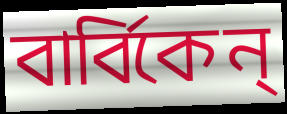
বার্বিকেন্